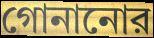
গোনানোর